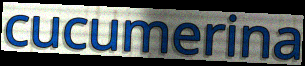
cucumerina